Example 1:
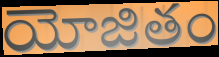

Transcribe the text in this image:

యోజితం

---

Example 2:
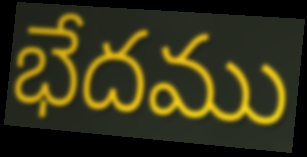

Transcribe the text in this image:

భేదము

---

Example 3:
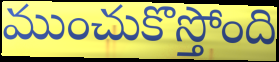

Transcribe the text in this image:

ముంచుకొస్తోంది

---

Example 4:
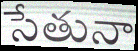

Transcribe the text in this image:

సేతునా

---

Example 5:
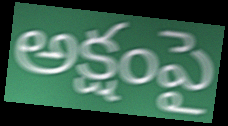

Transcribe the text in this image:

అక్షంపై